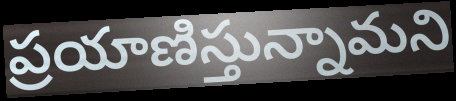
ప్రయాణిస్తున్నామని